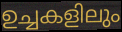
ഉച്ചകളിലും